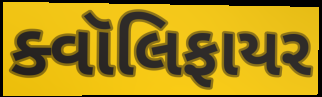
ક્વૉલિફાયર